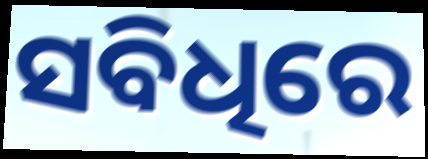
ସବିଧିରେ